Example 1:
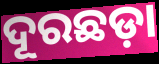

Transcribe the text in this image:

ଦୂରଛଡ଼ା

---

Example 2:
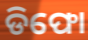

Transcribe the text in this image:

ଡିଫୋ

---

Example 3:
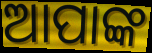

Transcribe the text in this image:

ଆପାଙ୍କ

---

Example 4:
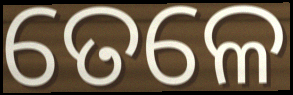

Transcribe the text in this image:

ତେଳେ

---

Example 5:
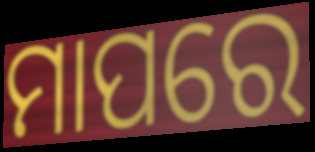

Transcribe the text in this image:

ମାପରେ